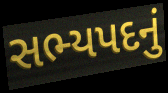
સભ્યપદનું